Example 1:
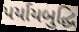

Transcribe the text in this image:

પર્યાયબુદ્ધિ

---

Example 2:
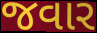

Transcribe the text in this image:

જવાર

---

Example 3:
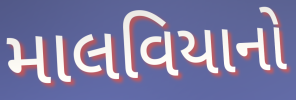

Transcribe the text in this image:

માલવિયાનો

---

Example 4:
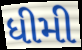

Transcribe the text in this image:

ધીમી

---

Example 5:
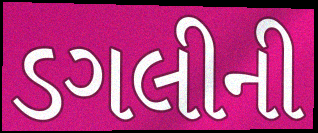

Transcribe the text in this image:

ડગલીની